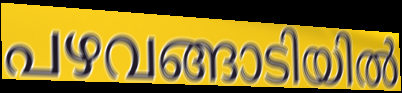
പഴവങ്ങാടിയിൽ